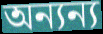
অন্যন্য